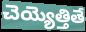
చెయ్యెత్తితే